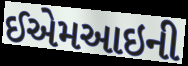
ઈએમઆઇની